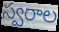
స్వరాల